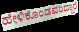
ಹೇಳಿಕೊಂಡವರಿದ್ದಾರೆ